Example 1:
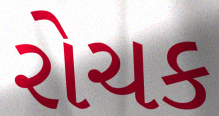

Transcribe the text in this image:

રોચક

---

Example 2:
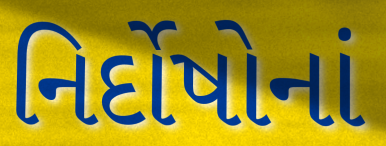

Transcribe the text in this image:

નિર્દોષોનાં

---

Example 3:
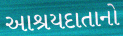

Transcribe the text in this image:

આશ્રયદાતાનો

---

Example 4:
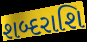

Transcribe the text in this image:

શબ્દરાશિ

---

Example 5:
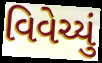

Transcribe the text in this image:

વિવેચ્યું